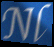
Nl